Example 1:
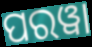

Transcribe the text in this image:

ପରୱା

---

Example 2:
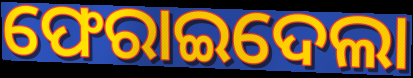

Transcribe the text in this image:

ଫେରାଇଦେଲା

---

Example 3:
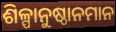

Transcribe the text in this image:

ଶିଳ୍ପାନୁଷ୍ଠାନମାନ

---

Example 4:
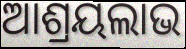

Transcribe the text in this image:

ଆଶ୍ରୟଲାଭ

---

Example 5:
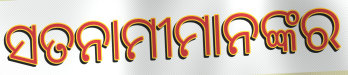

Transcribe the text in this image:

ସତନାମୀମାନଙ୍କର